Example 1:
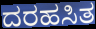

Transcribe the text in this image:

ದರಹಸಿತ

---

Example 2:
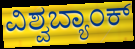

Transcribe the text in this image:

ವಿಶ್ವಬ್ಯಾಂಕ್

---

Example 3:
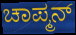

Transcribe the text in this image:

ಚಾಪ್ಮನ್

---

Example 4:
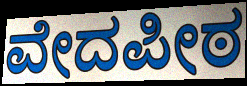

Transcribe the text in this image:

ವೇದಪೀಠ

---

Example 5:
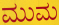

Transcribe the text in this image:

ಮುಮ